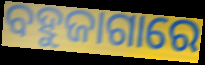
ବହୁଜାଗାରେ